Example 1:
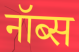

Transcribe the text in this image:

नॉब्स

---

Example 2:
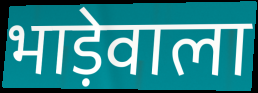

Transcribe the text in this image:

भाड़ेवाला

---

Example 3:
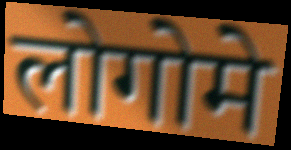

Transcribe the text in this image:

लोगोमे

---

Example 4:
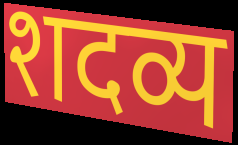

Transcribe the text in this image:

शदव्य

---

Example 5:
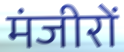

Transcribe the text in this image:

मंजीरों